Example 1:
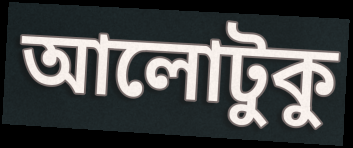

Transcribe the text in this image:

আলোটুকু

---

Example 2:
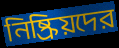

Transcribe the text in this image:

নিষ্ক্রিয়দের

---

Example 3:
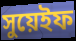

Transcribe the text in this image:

সুয়েইফ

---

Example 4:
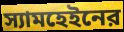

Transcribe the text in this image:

স্যামহেইনের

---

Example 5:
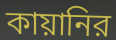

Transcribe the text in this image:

কায়ানির